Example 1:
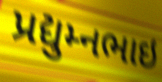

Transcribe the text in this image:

પ્રદ્યુમ્નભાઇ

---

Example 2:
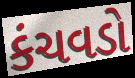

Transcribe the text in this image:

કંચવડો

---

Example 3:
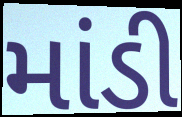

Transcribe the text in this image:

માંડી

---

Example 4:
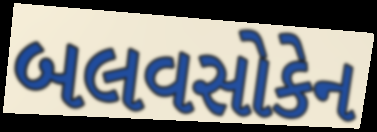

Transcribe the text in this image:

બલવસોકેન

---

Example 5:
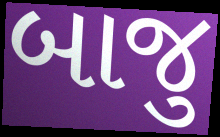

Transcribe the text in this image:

બાજુ